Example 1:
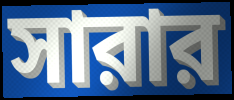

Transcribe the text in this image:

সারার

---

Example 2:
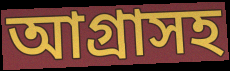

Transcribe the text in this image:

আগ্রাসহ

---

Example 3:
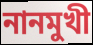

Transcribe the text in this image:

নানমুখী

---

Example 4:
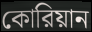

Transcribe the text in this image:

কোরিয়ান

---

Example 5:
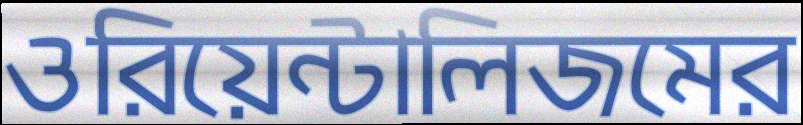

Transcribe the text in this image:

ওরিয়েন্টালিজমের